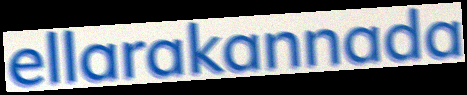
ellarakannada